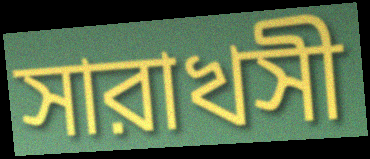
সারাখসী